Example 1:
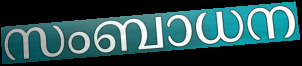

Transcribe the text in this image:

സംബാധന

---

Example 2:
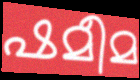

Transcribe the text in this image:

ഷമീമ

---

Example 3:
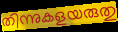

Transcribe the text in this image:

തിന്നുകളയരുതു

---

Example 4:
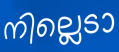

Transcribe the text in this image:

നില്ലെടാ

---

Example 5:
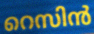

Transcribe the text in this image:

റെസിൻ